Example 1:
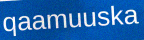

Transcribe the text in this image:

qaamuuska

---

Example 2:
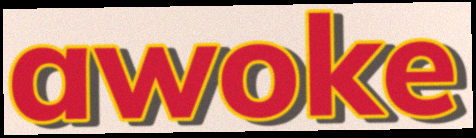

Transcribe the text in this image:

awoke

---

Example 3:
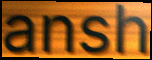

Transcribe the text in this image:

ansh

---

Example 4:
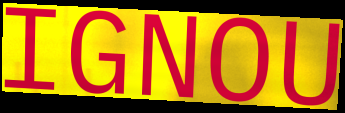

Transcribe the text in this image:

IGNOU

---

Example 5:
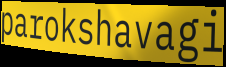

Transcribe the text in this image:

parokshavagi